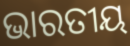
ଭାରତୀୟ